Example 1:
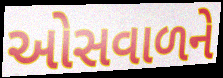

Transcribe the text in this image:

ઓસવાળને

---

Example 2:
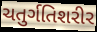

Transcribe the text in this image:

ચતુર્ગતિશરીર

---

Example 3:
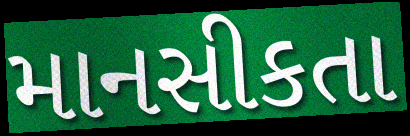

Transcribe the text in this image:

માનસીકતા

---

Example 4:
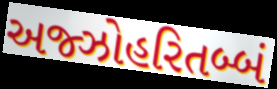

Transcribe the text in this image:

અજ્ઝોહરિતબ્બં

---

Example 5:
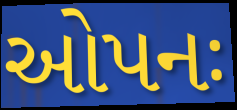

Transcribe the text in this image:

ઓપનઃ